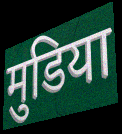
मुडिया